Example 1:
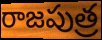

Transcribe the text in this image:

రాజపుత్ర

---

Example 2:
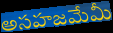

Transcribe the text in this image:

అసహజమేమీ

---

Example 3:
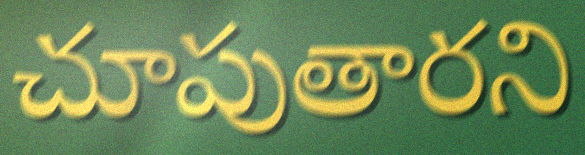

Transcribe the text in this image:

చూపుతారని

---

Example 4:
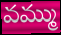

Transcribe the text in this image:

వమ్ము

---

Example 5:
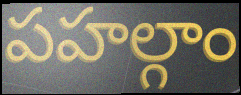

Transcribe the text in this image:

పహల్గాం